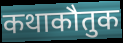
कथाकौतुक